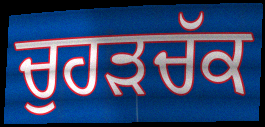
ਚੁਹੜਚੱਕ